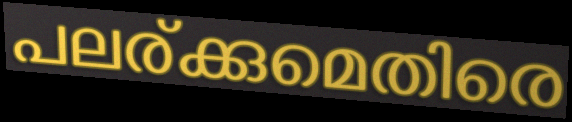
പലര്ക്കുമെതിരെ